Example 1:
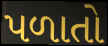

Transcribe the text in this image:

પળાતો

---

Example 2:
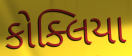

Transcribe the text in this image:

કોક્લિયા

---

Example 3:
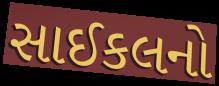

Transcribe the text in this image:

સાઈકલનો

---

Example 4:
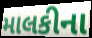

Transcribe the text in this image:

માલકીના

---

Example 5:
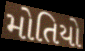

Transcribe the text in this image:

મોતિયો